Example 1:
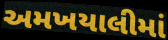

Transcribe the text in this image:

અમખયાલીમાં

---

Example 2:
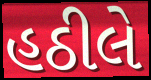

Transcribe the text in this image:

હઠીલે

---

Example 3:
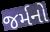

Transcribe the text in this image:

જર્મનો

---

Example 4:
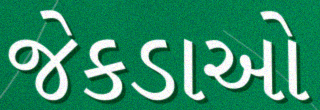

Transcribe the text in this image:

જેકડાઓ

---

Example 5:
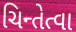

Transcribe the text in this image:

ચિન્તેત્વા